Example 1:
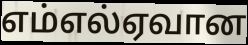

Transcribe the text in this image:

எம்எல்ஏவான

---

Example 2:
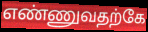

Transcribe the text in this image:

எண்ணுவதற்கே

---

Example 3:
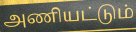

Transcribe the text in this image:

அணியட்டும்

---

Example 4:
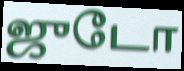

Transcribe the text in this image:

ஜுடோ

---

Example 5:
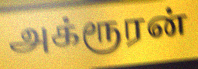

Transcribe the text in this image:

அக்ரூரன்